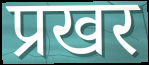
प्रखर